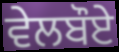
ਵੇਲਬੌਏ